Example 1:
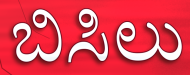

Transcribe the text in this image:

ಬಿಸಿಲು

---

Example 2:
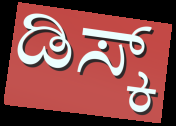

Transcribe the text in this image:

ಡಿಸ್ಕ್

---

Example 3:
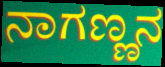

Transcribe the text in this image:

ನಾಗಣ್ಣನ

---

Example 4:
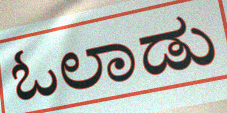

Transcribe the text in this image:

ಓಲಾಡು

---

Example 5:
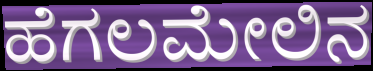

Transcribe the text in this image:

ಹೆಗಲಮೇಲಿನ